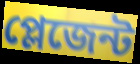
প্লেজেন্ট